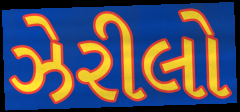
ઝેરીલો